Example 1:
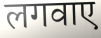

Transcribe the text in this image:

लगवाए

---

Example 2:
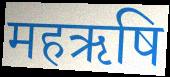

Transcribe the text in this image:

महऋषि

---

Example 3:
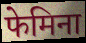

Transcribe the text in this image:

फेमिना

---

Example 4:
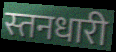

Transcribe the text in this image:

स्‍तनधारी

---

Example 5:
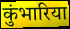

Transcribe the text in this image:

कुंभारिया